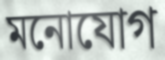
মনোযোগ